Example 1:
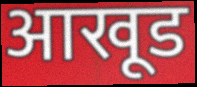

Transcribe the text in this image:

आखूड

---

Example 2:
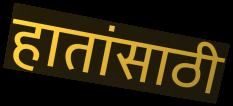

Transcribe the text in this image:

हातांसाठी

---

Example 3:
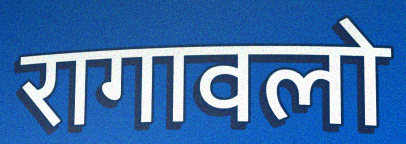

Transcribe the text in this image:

रागावलो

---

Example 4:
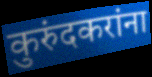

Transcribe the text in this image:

कुरुंदकरांना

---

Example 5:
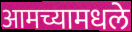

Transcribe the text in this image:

आमच्यामधले